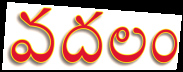
వదలం